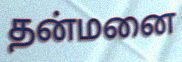
தன்மனை